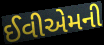
ઈવીએમની